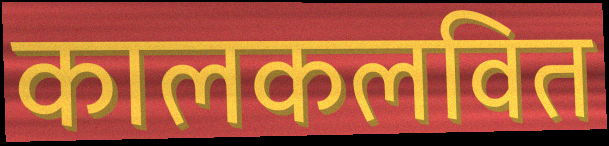
कालकलवित